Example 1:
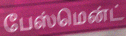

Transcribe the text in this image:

பேஸ்மென்ட்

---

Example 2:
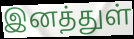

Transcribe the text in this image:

இனத்துள்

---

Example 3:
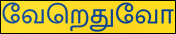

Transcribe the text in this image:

வேறெதுவோ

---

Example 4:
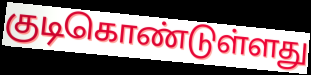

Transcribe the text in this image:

குடிகொண்டுள்ளது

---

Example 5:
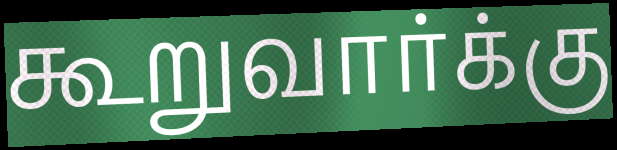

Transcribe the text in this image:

கூறுவார்க்கு